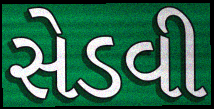
સેડવી